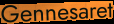
Gennesaret